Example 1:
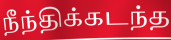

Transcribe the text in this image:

நீந்திக்கடந்த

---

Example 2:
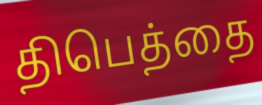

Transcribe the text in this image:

திபெத்தை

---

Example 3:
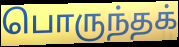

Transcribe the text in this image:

பொருந்தக்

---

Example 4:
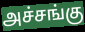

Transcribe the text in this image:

அச்சங்கு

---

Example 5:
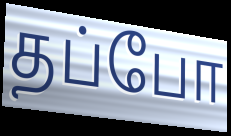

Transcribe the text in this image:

தப்போ